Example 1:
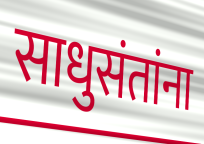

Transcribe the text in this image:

साधुसंतांना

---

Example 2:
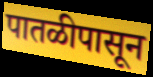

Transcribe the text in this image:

पातळीपासून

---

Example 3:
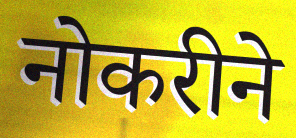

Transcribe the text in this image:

नोकरीने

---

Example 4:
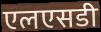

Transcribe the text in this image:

एलएसडी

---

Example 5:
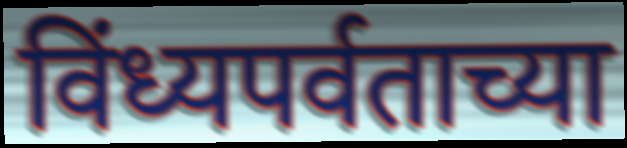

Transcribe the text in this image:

विंध्यपर्वताच्या